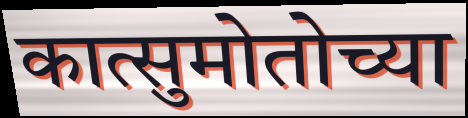
कात्सुमोतोच्या